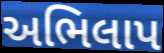
અભિલાપ